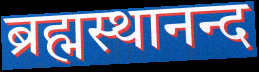
ब्रह्मस्थानन्द